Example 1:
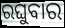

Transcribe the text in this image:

ରଘୁବାର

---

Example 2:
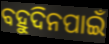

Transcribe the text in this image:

ବହୁଦିନପାଇଁ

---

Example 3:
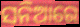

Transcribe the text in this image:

ସନିଆରେ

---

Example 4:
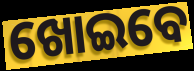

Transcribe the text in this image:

ଖୋଇବେ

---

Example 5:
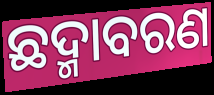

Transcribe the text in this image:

ଛଦ୍ମାବରଣ